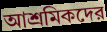
আশ্রমিকদের